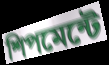
শিপমেন্টে